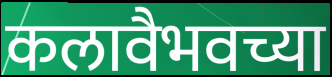
कलावैभवच्या